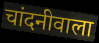
चांदनीवाला